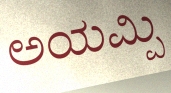
ಅಯಮ್ಪಿ